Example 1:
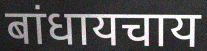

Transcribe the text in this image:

बांधायचाय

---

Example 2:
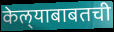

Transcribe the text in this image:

केल्याबाबतची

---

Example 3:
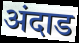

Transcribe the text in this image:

अंदाड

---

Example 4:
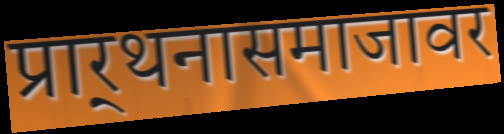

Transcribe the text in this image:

प्रार्थनासमाजावर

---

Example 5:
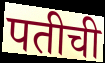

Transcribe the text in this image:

पतीची